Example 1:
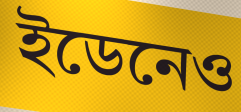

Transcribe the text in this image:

ইডেনেও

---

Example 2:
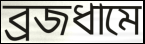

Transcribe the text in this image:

ব্রজধামে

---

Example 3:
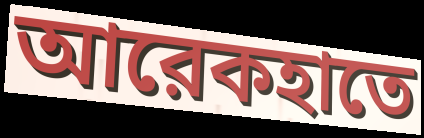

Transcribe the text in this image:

আরেকহাতে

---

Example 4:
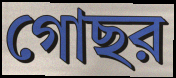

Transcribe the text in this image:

গোছর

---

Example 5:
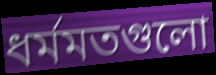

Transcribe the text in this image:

ধর্মমতগুলো